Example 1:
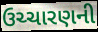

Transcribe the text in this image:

ઉચ્ચારણની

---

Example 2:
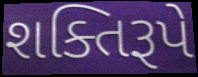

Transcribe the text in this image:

શક્તિરૂપે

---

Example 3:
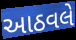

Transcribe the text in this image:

આઠવલે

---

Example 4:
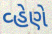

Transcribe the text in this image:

વ્હેણે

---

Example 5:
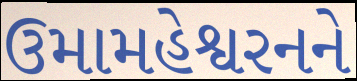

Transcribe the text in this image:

ઉમામહેશ્વરનને